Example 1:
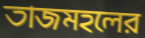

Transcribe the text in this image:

তাজমহলের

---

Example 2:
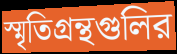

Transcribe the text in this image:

স্মৃতিগ্রন্থগুলির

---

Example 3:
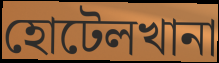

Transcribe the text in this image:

হোটেলখানা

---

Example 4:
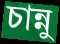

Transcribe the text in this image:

চান্নু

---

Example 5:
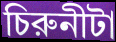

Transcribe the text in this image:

চিরুনীটা